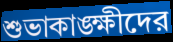
শুভাকাঙ্ক্ষীদের